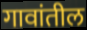
गावांतील